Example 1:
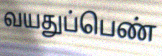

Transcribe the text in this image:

வயதுப்பெண்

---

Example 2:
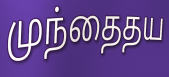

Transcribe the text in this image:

முந்தைதய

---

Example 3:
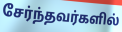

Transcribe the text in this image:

சேர்ந்தவர்களில்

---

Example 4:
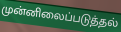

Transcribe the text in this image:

முன்னிலைப்படுத்தல்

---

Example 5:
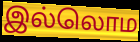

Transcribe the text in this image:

இல்லொம